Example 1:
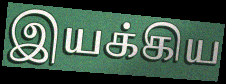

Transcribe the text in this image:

இயக்கிய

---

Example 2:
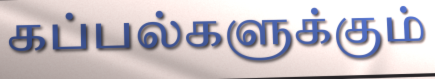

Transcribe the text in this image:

கப்பல்களுக்கும்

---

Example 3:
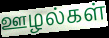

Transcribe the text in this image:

ஊழல்கள்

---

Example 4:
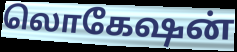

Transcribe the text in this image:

லொகேஷன்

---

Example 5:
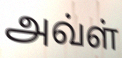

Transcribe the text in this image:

அவ்ள்